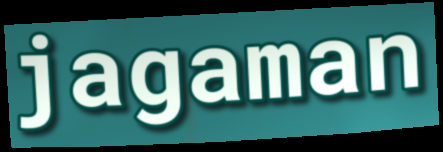
jagaman